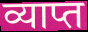
व्याप्त